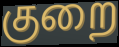
குறை